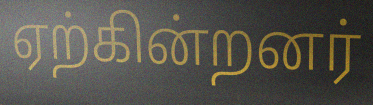
ஏற்கின்றனர்